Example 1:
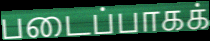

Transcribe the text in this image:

படைப்பாகக்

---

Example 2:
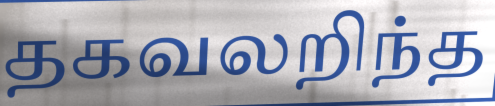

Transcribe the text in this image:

தகவலறிந்த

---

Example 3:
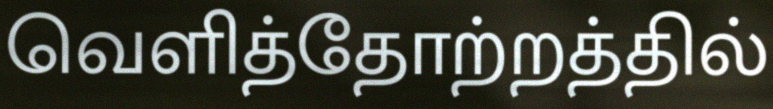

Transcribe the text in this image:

வெளித்தோற்றத்தில்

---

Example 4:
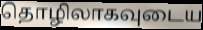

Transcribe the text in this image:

தொழிலாகவுடைய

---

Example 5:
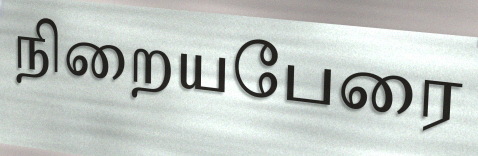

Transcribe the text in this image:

நிறையபேரை